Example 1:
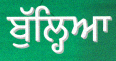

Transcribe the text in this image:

ਬੁੱਲ੍ਹਿਆ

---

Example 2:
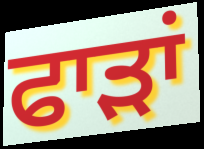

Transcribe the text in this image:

ਫਾੜਾਂ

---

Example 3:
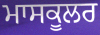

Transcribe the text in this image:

ਮਾਸਕੂਲਰ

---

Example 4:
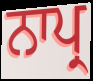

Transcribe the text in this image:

ਨਾਪ੍ਰ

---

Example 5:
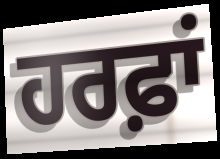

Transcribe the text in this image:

ਹਰਫ਼ਾਂ